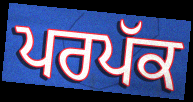
ਪਰਪੱਕ